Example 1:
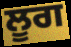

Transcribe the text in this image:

ਲੂਗ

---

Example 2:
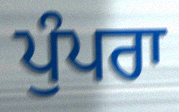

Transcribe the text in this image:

ਪੁੰਪਰਾ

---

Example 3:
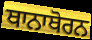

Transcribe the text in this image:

ਥਾਨਾਥੋਰਨ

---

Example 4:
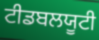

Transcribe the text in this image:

ਟੀਡਬਲਯੂਟੀ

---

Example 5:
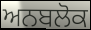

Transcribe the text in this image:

ਅਨਬਲੋਕ